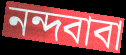
নন্দবাবা